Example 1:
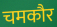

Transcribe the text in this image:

चमकौर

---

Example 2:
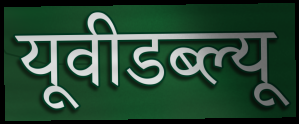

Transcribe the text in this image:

यूवीडब्ल्यू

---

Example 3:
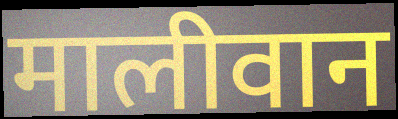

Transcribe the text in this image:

मालीवान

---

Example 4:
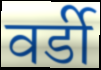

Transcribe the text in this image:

वर्डी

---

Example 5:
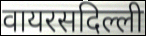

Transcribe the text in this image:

वायरसदिल्ली